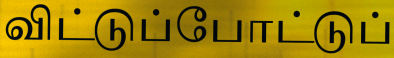
விட்டுப்போட்டுப்